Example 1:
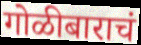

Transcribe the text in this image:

गोळीबाराचं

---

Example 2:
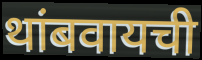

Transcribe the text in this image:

थांबवायची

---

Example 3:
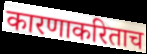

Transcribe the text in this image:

कारणाकरिताच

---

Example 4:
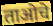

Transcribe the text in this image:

ताओचे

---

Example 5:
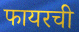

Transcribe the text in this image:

फायरची